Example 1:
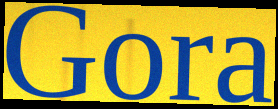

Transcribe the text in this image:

Gora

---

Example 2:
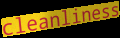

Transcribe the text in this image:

cleanliness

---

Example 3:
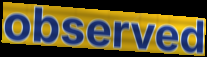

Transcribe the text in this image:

observed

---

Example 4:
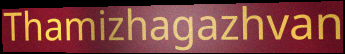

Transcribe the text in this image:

Thamizhagazhvan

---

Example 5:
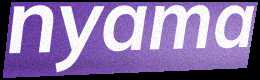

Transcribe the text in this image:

nyama